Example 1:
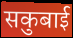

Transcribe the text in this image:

सकुबाई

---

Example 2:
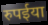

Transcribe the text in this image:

रुपईया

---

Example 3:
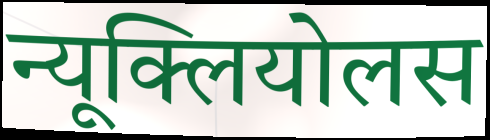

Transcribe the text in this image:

न्यूक्लियोलस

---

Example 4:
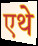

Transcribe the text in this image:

एथे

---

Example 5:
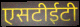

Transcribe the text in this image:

एसटीईटी